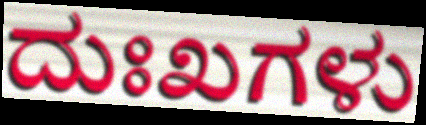
ದುಃಖಗಳು